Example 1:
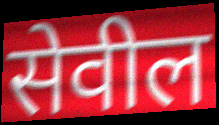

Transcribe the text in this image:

सेवील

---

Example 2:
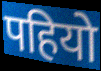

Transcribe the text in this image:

पहियो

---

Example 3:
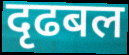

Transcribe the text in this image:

दृढबल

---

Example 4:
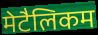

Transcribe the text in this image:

मेटैलिकम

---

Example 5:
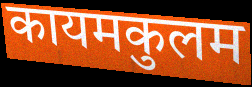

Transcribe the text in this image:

कायमकुलम